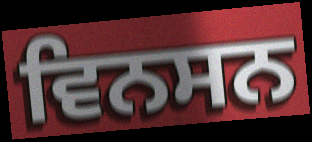
ਵਿਨਸਨ